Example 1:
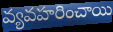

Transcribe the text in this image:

వ్యవహరించాయి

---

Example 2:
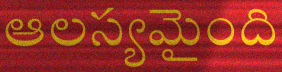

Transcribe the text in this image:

ఆలస్యమైంది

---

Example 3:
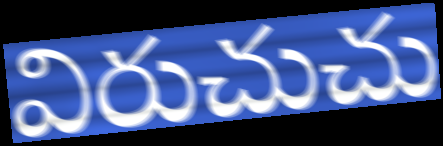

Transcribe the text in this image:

విరుచుచు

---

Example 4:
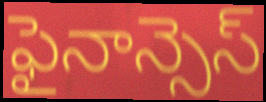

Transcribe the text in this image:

ఫైనాన్సెస్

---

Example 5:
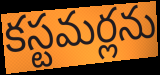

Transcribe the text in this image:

కస్టమర్లను